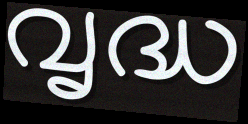
വൃദ്ധ